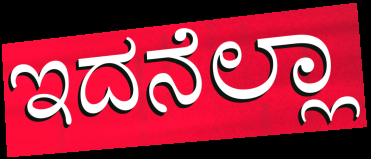
ಇದನೆಲ್ಲಾ